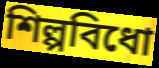
শিল্পবিধো